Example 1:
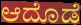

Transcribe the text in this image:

ಆದೊಡೆ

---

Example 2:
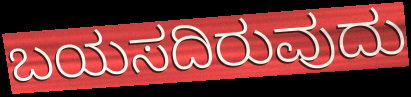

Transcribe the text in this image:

ಬಯಸದಿರುವುದು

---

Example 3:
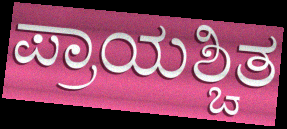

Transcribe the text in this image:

ಪ್ರಾಯಶ್ಚಿತ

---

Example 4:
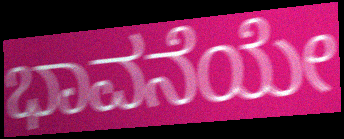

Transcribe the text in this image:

ಭಾವನೆಯೇ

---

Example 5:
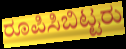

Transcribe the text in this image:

ರೂಪಿಸಿಬಿಟ್ಟರು